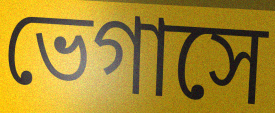
ভেগাসে